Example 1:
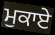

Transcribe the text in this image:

ਮੁਕਾਏ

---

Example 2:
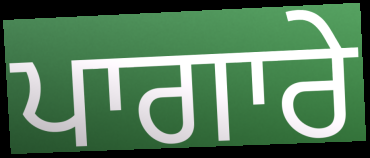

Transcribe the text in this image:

ਪਾਗਾਰੇ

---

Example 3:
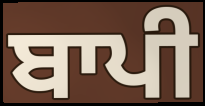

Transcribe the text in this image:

ਬਾਪੀ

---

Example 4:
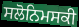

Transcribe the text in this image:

ਸਲੋਨਿਮਸਕੀ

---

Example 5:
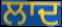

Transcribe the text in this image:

ਲਾਦ